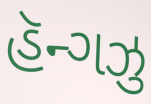
હૅન્ગઝુ